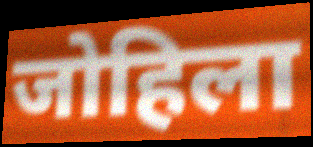
जोहिला